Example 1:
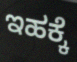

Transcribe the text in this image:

ಇಹಕ್ಕೆ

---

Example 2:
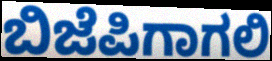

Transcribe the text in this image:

ಬಿಜೆಪಿಗಾಗಲಿ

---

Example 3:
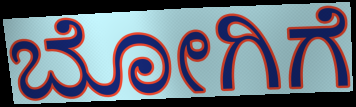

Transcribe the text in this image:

ಬೋಗಿಗೆ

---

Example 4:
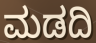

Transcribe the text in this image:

ಮಡದಿ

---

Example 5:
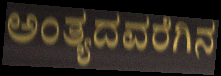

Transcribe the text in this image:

ಅಂತ್ಯದವರೆಗಿನ